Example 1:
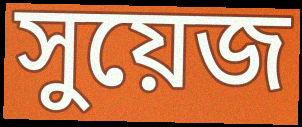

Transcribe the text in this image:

সুয়েজ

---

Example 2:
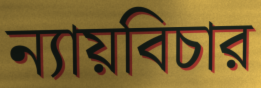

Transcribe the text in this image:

ন্যায়বিচার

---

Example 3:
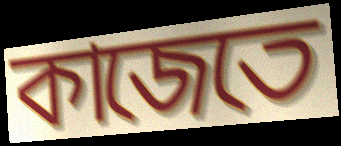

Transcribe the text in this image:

কাজেতে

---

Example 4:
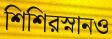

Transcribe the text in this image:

শিশিরস্নানও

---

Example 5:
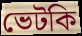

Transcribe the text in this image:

ভেটকি